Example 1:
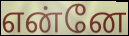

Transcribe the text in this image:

என்னே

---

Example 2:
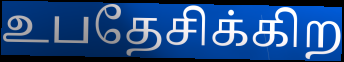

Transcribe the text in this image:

உபதேசிக்கிற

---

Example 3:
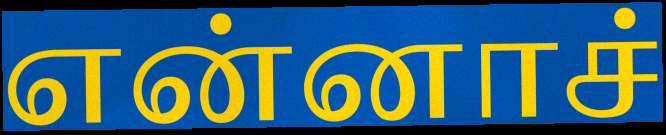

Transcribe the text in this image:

என்னாச்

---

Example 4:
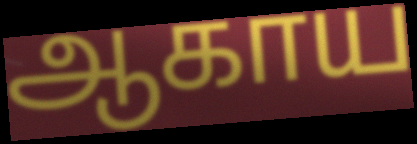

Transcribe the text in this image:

ஆகாய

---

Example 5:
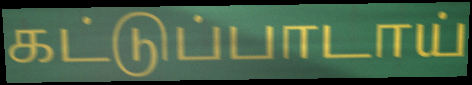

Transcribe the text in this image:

கட்டுப்பாடாய்